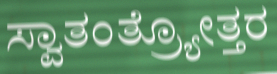
ಸ್ವಾತಂತ್ರ್ಯೋತ್ತರ